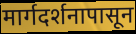
मार्गदर्शनापासून